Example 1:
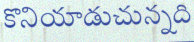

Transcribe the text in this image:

కొనియాడుచున్నది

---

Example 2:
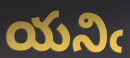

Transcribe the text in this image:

యనిఁ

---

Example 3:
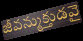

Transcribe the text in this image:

జీవన్ముక్తుడవై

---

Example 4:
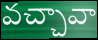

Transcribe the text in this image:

వచ్చావా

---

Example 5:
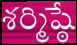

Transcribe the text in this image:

శర్మిష్ఠే